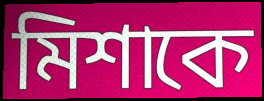
মিশাকে